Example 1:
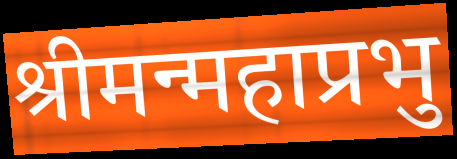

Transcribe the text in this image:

श्रीमन्महाप्रभु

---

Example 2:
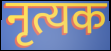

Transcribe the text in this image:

नृत्यक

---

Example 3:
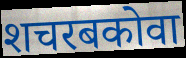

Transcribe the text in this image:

शचरबकोवा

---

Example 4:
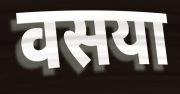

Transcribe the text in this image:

वसया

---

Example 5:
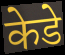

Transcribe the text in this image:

केडे